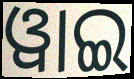
ୱାଇ